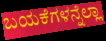
ಬಯಕೆಗಳನ್ನೆಲ್ಲಾ